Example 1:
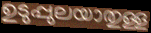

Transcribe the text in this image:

ഉടുപ്പുലയാതുള്ള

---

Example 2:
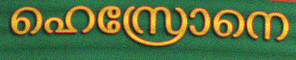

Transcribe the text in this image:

ഹെസ്രോനെ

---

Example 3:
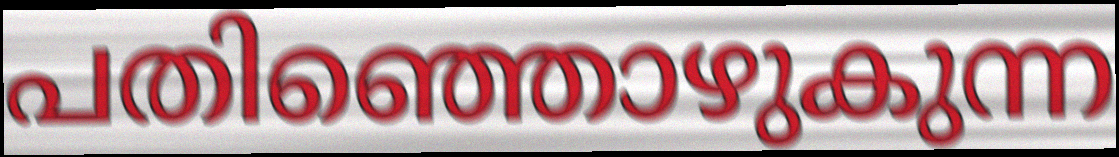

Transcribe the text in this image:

പതിഞ്ഞൊഴുകുന്ന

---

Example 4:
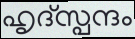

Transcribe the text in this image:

ഹൃദ്സ്പന്ദം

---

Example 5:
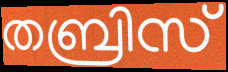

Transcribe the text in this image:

തബ്രിസ്